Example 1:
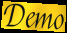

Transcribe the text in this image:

Demo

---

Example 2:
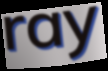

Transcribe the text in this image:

ray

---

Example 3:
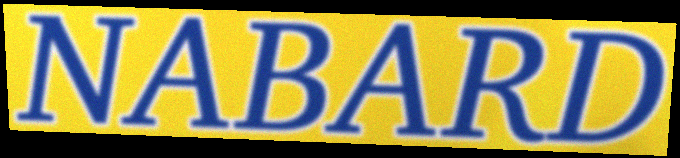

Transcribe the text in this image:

NABARD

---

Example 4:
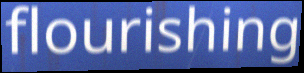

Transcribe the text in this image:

flourishing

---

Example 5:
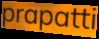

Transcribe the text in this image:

prapatti